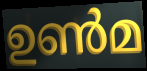
ഉൺമ